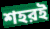
শহরই